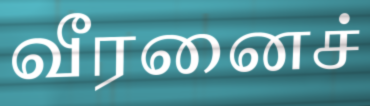
வீரனைச்